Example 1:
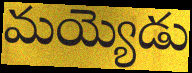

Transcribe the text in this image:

మయ్యెడు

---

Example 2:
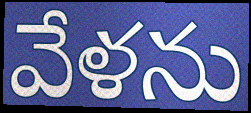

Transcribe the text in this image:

వేళను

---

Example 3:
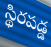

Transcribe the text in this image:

స్థిరపడ్డ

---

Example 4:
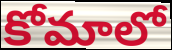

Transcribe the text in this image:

కోమాలో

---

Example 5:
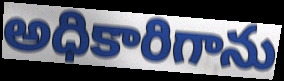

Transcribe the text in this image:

అధికారిగాను